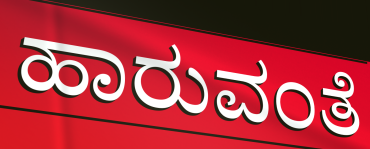
ಹಾರುವಂತೆ